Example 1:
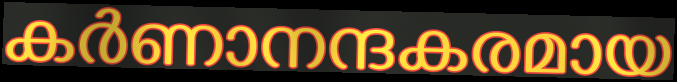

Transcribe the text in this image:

കർണാനന്ദകരമായ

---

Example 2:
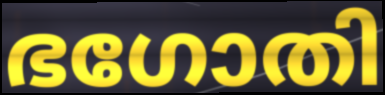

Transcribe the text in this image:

ഭഗോതി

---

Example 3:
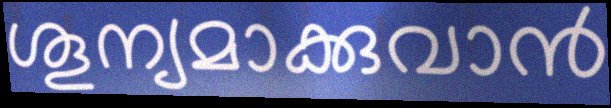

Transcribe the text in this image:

ശൂന്യമാക്കുവാൻ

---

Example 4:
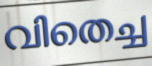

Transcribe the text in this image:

വിതെച്ച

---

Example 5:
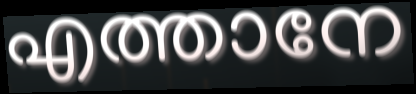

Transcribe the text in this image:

എത്താനേ